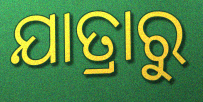
ଯାତ୍ରାରୁ